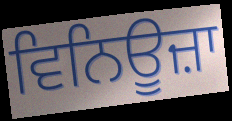
ਵਿਨਿਊਜ਼ਾ